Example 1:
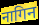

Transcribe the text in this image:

नागिन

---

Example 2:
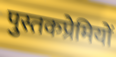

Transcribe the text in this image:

पुस्तकप्रेमियों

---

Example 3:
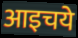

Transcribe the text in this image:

आइचये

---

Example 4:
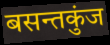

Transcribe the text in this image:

बसन्तकुंज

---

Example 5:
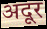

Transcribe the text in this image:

अदूर